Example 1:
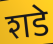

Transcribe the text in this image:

शडे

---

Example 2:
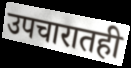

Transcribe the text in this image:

उपचारातही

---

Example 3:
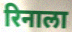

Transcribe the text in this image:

रिनाला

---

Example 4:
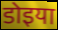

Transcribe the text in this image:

डोइया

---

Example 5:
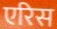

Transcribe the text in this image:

एरिस